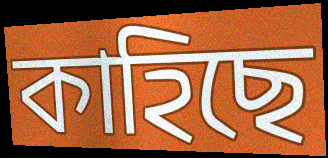
কাহিছে